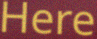
Here